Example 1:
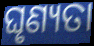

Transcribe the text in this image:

ଘୃଣ୍ୟତା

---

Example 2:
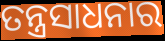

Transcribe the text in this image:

ତନ୍ତ୍ରସାଧନାର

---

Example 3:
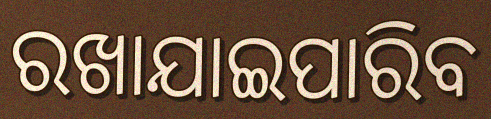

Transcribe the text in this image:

ରଖାଯାଇପାରିବ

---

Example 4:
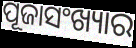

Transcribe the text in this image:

ପୂଜାସଂଖ୍ୟାର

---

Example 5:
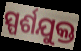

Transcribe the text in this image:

ସ୍ପର୍ଶଯୁକ୍ତ